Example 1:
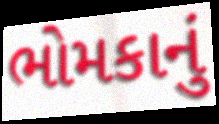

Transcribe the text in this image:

ભોમકાનું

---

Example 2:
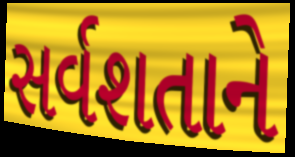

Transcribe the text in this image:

સર્વશતાને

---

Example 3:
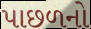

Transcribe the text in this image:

પાછળનો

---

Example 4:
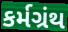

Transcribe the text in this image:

કર્મગ્રંથ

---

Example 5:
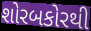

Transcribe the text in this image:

શોરબકોરથી